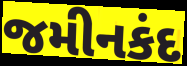
જમીનકંદ